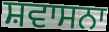
ਸ਼ਵਾਸਨਾ